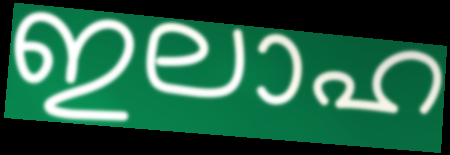
ഇലാഹ